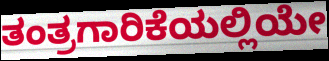
ತಂತ್ರಗಾರಿಕೆಯಲ್ಲಿಯೇ